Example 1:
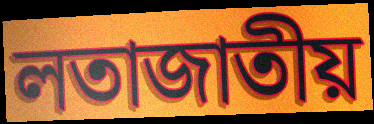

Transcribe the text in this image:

লতাজাতীয়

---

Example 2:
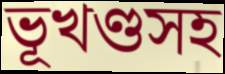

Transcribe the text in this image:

ভূখণ্ডসহ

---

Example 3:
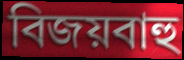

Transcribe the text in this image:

বিজয়বাহু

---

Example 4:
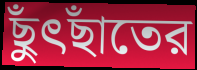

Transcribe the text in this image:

ছুঁৎছাঁতের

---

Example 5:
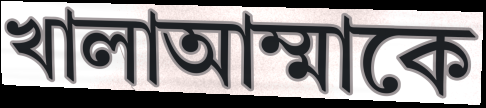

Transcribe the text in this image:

খালাআম্মাকে